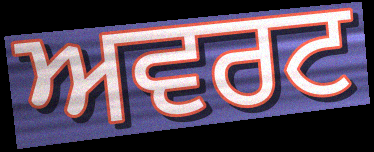
ਅਵਰਟ